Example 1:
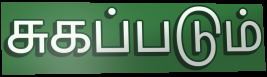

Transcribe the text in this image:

சுகப்படும்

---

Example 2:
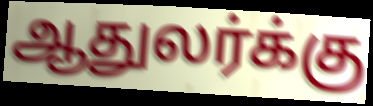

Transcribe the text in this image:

ஆதுலர்க்கு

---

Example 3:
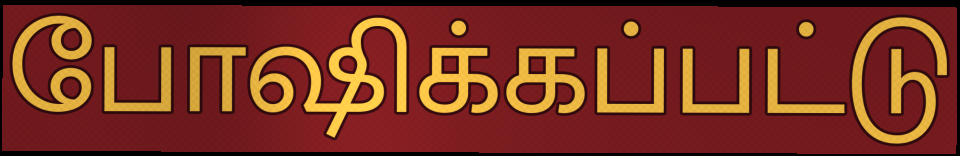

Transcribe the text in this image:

போஷிக்கப்பட்டு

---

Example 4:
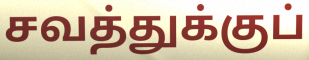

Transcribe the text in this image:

சவத்துக்குப்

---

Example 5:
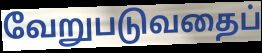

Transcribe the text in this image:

வேறுபடுவதைப்